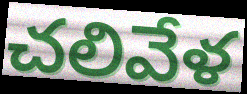
చలివేళ